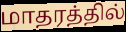
மாதரத்தில்